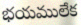
భయములేక